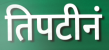
तिपटीनं